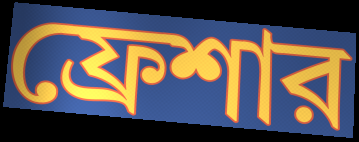
ফ্রেশার